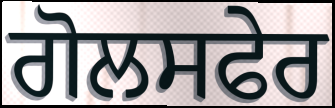
ਗੋਲਸਫੇਰ